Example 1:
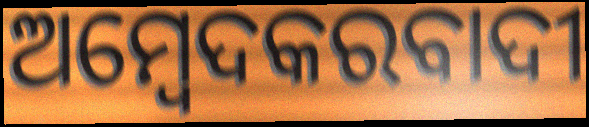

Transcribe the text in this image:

ଅମ୍ବେଦକରବାଦୀ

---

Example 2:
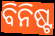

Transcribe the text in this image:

ବିନିଷ୍ଟ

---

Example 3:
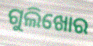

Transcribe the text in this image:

ଗୁଲିଖୋର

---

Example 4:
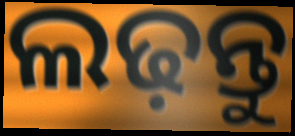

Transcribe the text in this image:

ଲଢ଼ନ୍ତୁ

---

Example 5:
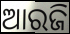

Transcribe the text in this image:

ଆରଜି